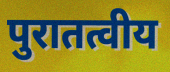
पुरातत्वीय